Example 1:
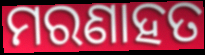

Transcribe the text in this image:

ମରଣାହତ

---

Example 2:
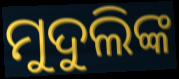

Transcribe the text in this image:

ମୁଦୁଲିଙ୍କ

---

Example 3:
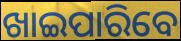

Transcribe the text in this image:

ଖାଇପାରିବେ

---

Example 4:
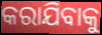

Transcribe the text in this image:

କରାଯିବାକୁ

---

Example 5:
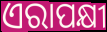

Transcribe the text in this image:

ଏରାପକ୍ଷୀ